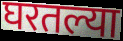
घरतल्या